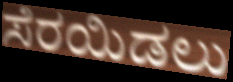
ಸೆರಯಿಡಲು